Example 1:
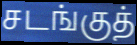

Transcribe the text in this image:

சடங்குத்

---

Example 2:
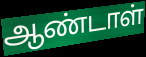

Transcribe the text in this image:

ஆண்டாள்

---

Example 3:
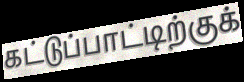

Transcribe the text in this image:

கட்டுப்பாட்டிற்குக்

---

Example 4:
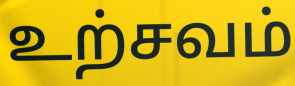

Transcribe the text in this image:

உற்சவம்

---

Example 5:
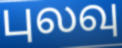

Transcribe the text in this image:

புலவு